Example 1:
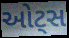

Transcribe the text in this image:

ઓટ્સ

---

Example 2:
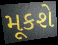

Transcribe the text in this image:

મૂકશે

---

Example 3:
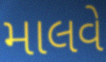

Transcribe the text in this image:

માલવે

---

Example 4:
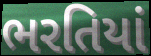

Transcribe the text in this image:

ભરતિયાં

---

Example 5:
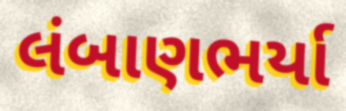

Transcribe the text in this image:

લંબાણભર્યા